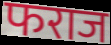
फराज